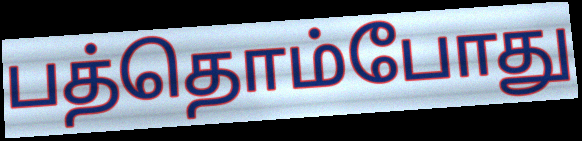
பத்தொம்போது